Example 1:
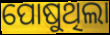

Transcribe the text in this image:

ପୋଷୁଥିଲା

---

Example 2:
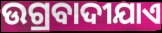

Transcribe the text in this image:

ଉଗ୍ରବାଦୀଯାଏ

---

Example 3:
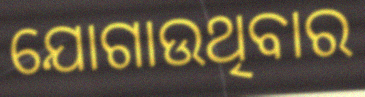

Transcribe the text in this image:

ଯୋଗାଉଥିବାର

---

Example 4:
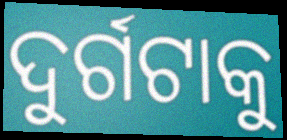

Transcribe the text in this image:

ଦୁର୍ଗଟାକୁ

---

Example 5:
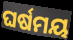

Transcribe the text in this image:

ଘର୍ଷମୟ